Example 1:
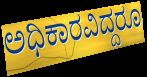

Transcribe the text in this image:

ಅಧಿಕಾರವಿದ್ದರೂ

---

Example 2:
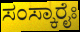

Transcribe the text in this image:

ಸಂಸ್ಕಾರೈಃ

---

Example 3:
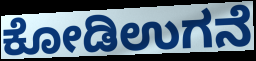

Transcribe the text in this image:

ಕೋಡಿಉಗನೆ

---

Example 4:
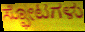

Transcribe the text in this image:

ಸ್ಫೋಟಗಳು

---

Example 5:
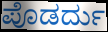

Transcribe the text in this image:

ಪೊಡರ್ದು